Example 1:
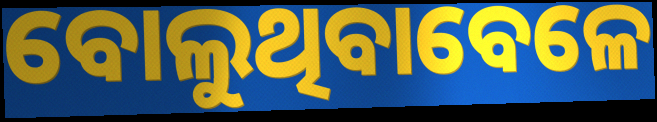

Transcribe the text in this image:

ବୋଲୁଥିବାବେଳେ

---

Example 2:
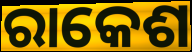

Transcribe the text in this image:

ରାକେଶ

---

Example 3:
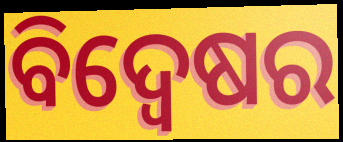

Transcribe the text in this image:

ବିଦ୍ବେଷର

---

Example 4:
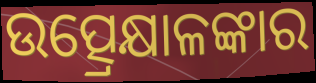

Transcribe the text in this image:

ଉତ୍ପ୍ରେକ୍ଷାଳଙ୍କାର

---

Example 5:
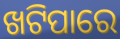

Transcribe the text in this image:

ଖଟିପାରେ